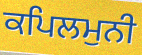
ਕਪਿਲਮੁਨੀ